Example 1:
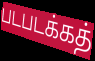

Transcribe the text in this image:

படபடக்கத்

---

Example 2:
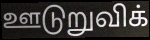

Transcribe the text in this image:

ஊடுறுவிக்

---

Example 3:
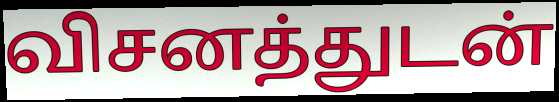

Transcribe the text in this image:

விசனத்துடன்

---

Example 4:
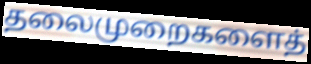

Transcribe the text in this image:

தலைமுறைகளைத்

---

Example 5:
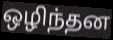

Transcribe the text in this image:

ஒழிந்தன